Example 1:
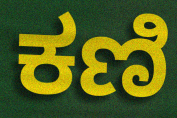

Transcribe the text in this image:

ಕಣಿ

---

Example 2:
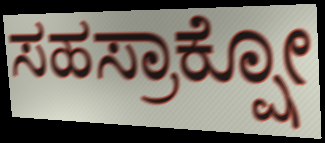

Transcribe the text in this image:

ಸಹಸ್ರಾಕ್ಷೋ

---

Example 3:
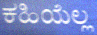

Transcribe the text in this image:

ಕಹಿಯೆಲ್ಲ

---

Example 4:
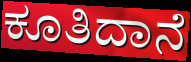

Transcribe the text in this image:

ಕೂತಿದಾನೆ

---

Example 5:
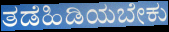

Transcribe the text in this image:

ತಡೆಹಿಡಿಯಬೇಕು